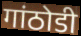
गांठोडी